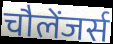
चौलेंजर्स